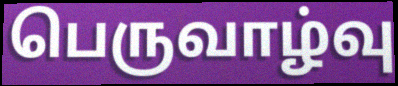
பெருவாழ்வு